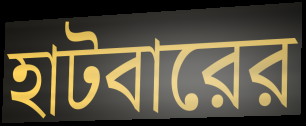
হাটবারের